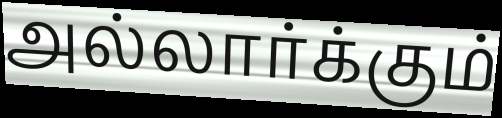
அல்லார்க்கும்